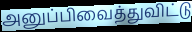
அனுப்பிவைத்துவிட்டு